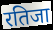
रतिजा